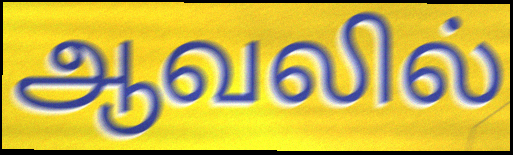
ஆவலில்